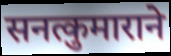
सनत्कुमाराने